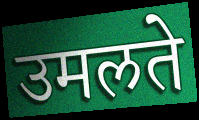
उमलते